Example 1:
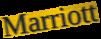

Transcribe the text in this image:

Marriott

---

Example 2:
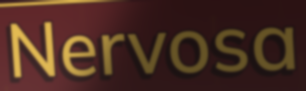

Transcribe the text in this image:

Nervosa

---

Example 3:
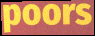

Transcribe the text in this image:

poors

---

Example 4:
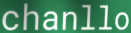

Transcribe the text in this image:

chanllo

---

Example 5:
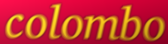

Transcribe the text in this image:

colombo